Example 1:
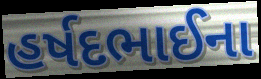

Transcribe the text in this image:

હર્ષદભાઈના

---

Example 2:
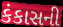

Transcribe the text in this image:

કંકાસની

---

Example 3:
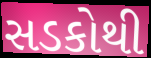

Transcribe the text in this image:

સડકોથી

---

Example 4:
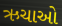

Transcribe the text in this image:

ઋચાઓ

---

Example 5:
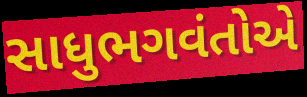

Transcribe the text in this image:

સાધુભગવંતોએ